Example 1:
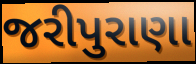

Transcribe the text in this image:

જરીપુરાણા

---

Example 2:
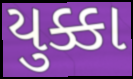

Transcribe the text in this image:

યુક્કા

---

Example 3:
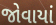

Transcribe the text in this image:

જોવાયાં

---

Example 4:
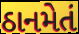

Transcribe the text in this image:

ઠાનમેતં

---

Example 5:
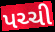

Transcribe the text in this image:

પચ્ચી